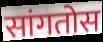
सांगतोस